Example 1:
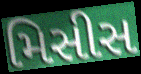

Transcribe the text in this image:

મિસીસ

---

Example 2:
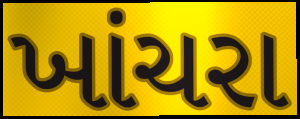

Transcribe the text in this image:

ખાંચરા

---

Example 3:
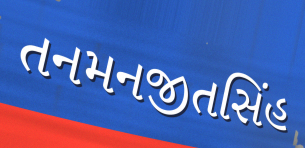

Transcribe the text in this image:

તનમનજીતસિંહ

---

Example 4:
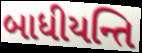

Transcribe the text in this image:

બાધીયન્તિ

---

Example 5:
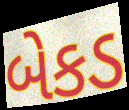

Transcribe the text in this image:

બેકડ